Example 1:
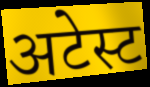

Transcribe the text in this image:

अटेस्ट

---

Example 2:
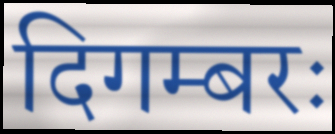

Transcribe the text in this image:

दिगम्बरः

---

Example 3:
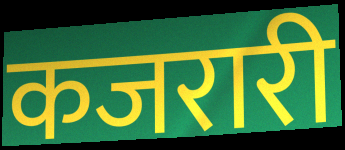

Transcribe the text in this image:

कजरारी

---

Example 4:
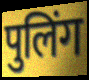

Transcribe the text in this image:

पुलिंग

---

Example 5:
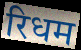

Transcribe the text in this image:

रिधम